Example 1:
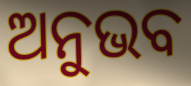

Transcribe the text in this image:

ଅନୁଭବ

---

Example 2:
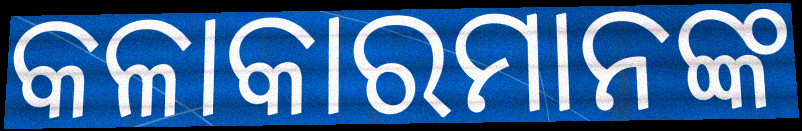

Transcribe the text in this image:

କଳାକାରମାନଙ୍କ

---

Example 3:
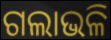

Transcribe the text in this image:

ଗଲାଭଳି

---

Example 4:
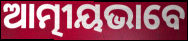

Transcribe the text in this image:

ଆତ୍ମୀୟଭାବେ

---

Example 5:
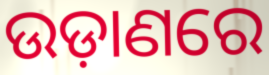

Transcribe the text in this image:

ଉଡ଼ାଣରେ